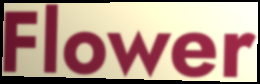
Flower